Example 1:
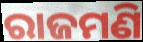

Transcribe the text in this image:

ରାଜମଣି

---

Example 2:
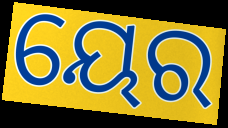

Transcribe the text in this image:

ୟେର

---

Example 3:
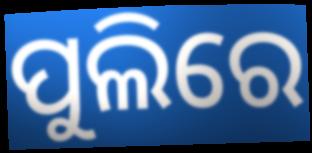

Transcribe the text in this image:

ପୁଲିରେ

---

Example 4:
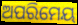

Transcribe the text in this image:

ଅପରିମେୟ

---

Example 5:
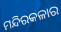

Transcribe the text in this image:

ମନ୍ଦିରକଳାର